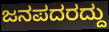
ಜನಪದರದ್ದು